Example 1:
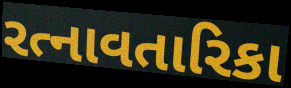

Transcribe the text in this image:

રત્નાવતારિકા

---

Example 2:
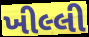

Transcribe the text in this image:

ખીલ્લી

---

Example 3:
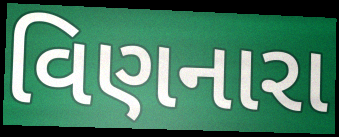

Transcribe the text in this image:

વિણનારા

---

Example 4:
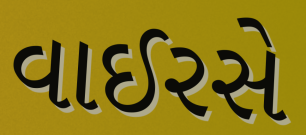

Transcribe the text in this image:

વાઈરસે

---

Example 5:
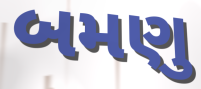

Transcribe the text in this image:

બમણુ